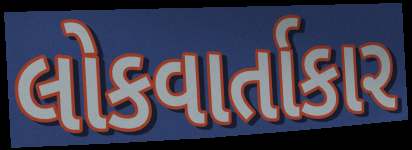
લોકવાર્તાકાર